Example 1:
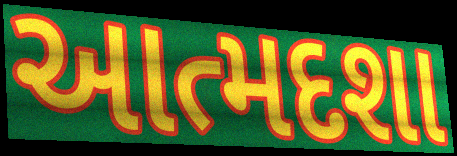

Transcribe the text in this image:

આત્મદશા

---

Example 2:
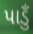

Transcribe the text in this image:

પાડુઁ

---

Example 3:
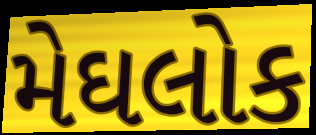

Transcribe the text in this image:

મેઘલોક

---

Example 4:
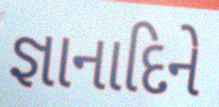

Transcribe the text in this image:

જ્ઞાનાદિને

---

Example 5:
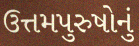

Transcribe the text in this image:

ઉત્તમપુરુષોનું